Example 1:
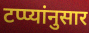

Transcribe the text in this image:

टप्प्यांनुसार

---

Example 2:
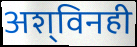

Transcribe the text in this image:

अश्विनही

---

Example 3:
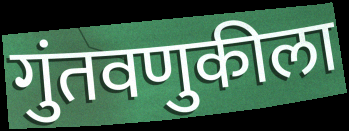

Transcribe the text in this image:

गुंतवणुकीला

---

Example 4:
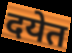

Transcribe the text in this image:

दयेत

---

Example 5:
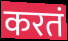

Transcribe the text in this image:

करतं